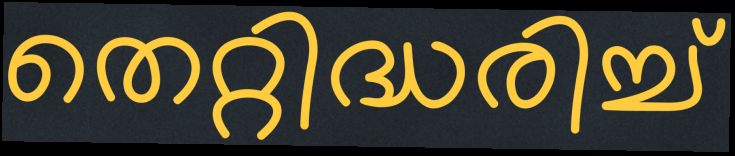
തെറ്റിദ്ധരിച്ച്